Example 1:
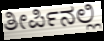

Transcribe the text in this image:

ತೀರ್ಪಿನಲ್ಲಿ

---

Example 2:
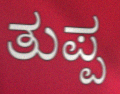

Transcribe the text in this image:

ತುಪ್ಪ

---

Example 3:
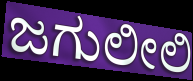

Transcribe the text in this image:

ಜಗುಲೀಲಿ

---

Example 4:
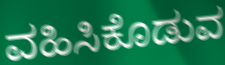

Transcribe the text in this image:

ವಹಿಸಿಕೊಡುವ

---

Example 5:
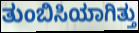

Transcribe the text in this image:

ತುಂಬಿಸಿಯಾಗಿತ್ತು